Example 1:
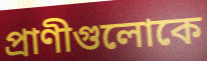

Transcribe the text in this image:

প্রাণীগুলোকে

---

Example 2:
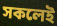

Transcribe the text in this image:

সকলেই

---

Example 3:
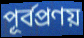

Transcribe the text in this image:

পূর্বপ্রণয়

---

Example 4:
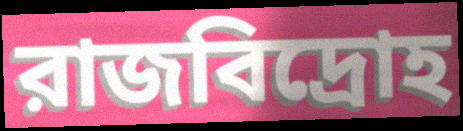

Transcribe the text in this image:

রাজবিদ্রোহ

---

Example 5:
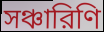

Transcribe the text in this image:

সঞ্চারিণি